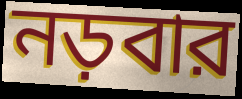
নড়বার